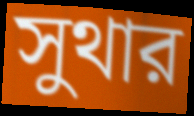
সুথার